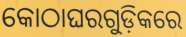
କୋଠାଘରଗୁଡ଼ିକରେ